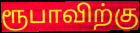
ரூபாவிற்கு